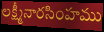
లక్ష్మీనారసింహము